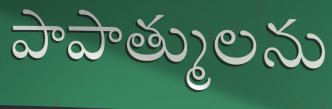
పాపాత్ములను